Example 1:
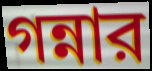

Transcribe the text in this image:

গন্নার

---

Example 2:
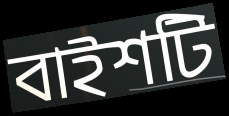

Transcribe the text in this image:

বাইশটি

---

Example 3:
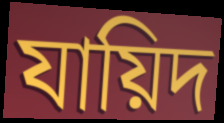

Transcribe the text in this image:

যায়িদ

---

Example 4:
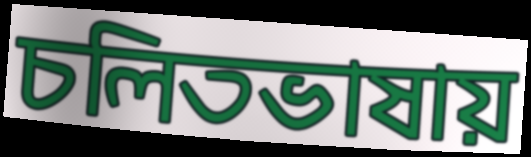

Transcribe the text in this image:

চলিতভাষায়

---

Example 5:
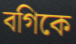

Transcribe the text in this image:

বগিকে